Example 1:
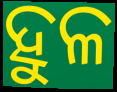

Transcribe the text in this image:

ହୁଳ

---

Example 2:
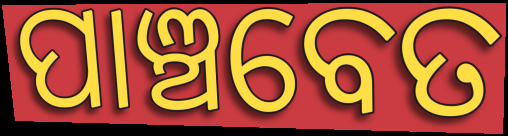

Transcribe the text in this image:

ପାଞ୍ଚବେତ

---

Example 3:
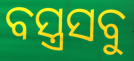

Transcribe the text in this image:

ବସ୍ତ୍ରସବୁ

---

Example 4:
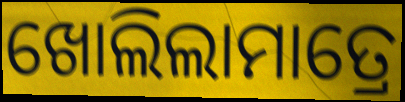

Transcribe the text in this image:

ଖୋଲିଲାମାତ୍ରେ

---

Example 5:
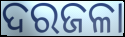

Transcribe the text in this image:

ଦରଜଳା